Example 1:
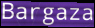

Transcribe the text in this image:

Bargaza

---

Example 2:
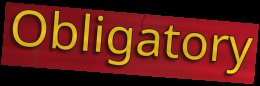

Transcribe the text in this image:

Obligatory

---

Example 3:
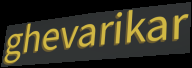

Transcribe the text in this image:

ghevarikar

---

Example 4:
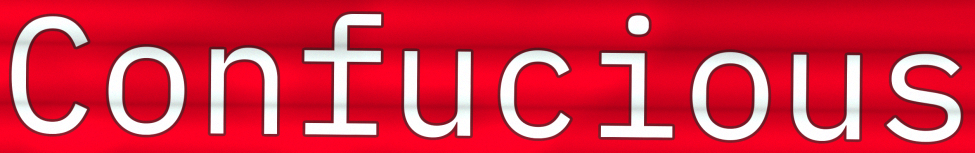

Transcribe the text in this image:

Confucious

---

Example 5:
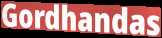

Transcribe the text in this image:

Gordhandas